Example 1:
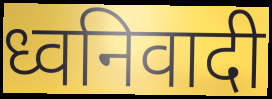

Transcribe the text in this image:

ध्वनिवादी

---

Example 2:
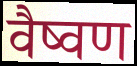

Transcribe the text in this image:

वैष्वण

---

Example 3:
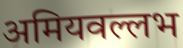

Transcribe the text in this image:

अमियवल्लभ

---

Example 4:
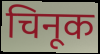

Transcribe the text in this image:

चिनूक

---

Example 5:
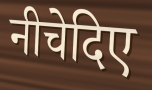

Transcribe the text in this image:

नीचेदिए